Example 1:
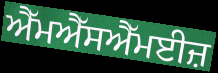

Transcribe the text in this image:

ਐੱਮਐੱਸਐੱਮਈਜ਼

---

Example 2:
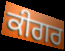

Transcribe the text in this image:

ਕੀਗਰ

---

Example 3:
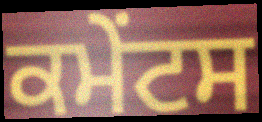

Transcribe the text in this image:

ਕਮੇੰਟਸ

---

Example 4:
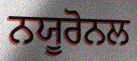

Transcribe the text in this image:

ਨਯੂਰੋਨਲ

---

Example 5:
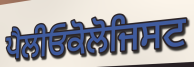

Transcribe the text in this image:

ਪੈਲੀਓਕੋਲੋਜਿਸਟ